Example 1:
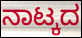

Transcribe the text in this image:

ನಾಟ್ಕದ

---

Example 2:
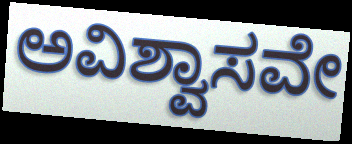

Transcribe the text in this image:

ಅವಿಶ್ವಾಸವೇ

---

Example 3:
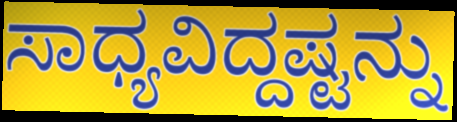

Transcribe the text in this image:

ಸಾಧ್ಯವಿದ್ದಷ್ಟನ್ನು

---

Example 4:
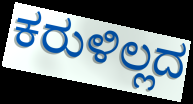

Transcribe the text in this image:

ಕರುಳಿಲ್ಲದ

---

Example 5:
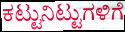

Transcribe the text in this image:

ಕಟ್ಟುನಿಟ್ಟುಗಳಿಗೆ